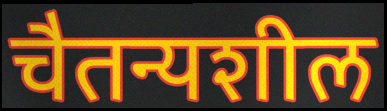
चैतन्यशील